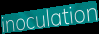
inoculation